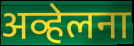
अव्हेलना